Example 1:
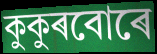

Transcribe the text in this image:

কুকুৰবোৰে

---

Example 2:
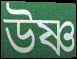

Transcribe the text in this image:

উষ্ণ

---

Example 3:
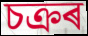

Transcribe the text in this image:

চক্ৰৰ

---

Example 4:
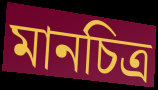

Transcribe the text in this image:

মানচিত্ৰ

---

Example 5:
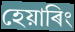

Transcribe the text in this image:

হেয়াৰিং